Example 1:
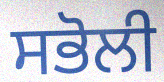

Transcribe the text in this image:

ਸਭੋਲੀ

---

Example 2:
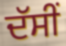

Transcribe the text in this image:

ਦੱਸੀਂ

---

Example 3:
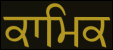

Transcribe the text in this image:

ਕਾਮਿਕ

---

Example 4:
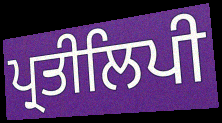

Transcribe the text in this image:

ਪ੍ਰਤੀਲਿਪੀ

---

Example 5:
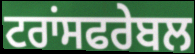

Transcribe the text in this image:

ਟਰਾਂਸਫਰੇਬਲ